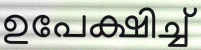
ഉപേക്ഷിച്ച്